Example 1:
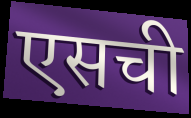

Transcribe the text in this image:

एसची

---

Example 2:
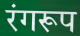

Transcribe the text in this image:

रंगरूप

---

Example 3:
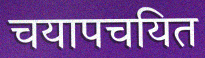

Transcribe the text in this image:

चयापचयित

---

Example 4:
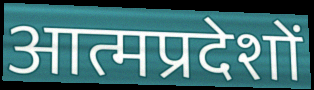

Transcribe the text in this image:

आत्मप्रदेशों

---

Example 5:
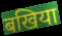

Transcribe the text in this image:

बखिया